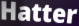
Hatter